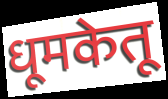
धूमकेतू